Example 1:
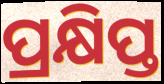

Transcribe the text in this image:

ପ୍ରକ୍ଷିପ୍ତ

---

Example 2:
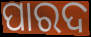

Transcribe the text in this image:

ପାରଦ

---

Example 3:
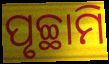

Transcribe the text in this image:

ପୃଚ୍ଛାମି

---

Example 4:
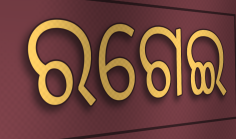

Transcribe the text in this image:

ରଗେଇ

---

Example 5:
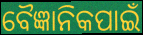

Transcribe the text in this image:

ବୈଜ୍ଞାନିକପାଇଁ